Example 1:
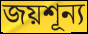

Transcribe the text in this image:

জয়শূন্য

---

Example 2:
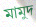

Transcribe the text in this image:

মামুদ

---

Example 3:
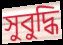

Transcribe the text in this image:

সুবুদ্ধি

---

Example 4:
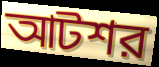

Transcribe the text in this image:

আটশর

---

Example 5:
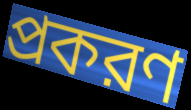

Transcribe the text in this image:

প্রকরণ